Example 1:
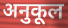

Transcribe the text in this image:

अनुकूल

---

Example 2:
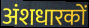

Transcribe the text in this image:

अंशधारकों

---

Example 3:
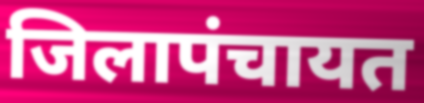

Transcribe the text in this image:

जिलापंचायत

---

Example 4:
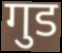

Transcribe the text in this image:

गुड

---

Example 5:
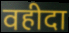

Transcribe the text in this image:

वहीदा